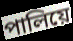
পালিয়ে